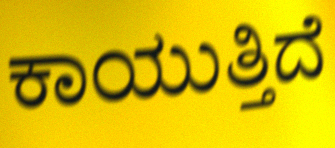
ಕಾಯುತ್ತಿದೆ